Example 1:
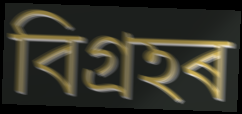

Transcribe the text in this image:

বিগ্ৰহৰ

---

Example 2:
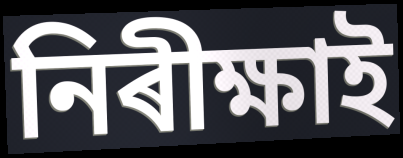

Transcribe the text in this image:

নিৰীক্ষাই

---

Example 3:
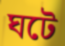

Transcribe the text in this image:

ঘটে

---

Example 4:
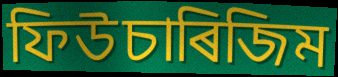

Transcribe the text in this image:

ফিউচাৰিজিম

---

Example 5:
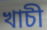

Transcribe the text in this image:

খাচী